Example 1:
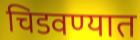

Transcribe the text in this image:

चिडवण्यात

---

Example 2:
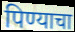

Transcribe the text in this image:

पिण्याचा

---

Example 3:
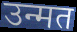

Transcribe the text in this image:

उन्मत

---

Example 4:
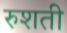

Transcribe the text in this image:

रुशती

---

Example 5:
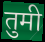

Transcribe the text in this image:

तुमी